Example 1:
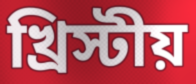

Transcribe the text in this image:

খ্রিস্টীয়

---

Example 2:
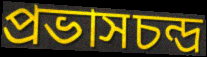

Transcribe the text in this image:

প্রভাসচন্দ্র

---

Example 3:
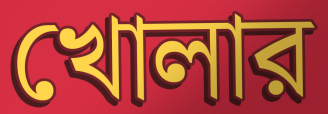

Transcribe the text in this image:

খোলার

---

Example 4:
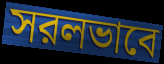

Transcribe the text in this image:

সরলভাবে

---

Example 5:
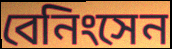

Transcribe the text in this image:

বেনিংসেন